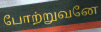
போற்றுவனே